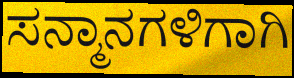
ಸನ್ಮಾನಗಳಿಗಾಗಿ